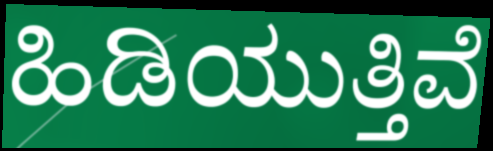
ಹಿಡಿಯುತ್ತಿವೆ